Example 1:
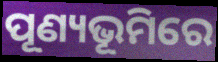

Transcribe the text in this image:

ପୂଣ୍ୟଭୂମିରେ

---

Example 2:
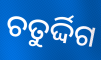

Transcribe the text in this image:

ଚତୁର୍ଦ୍ଦିଗ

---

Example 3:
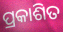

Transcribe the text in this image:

ପ୍ରକାଶିତ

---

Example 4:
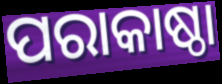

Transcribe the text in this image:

ପରାକାଷ୍ଠା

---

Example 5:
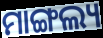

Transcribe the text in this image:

ମାଙ୍ଗଲ୍ୟ